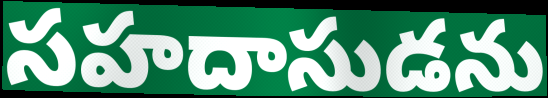
సహదాసుడను